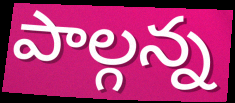
పాల్గన్న